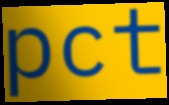
pct